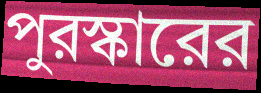
পুরস্কারের